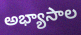
అభ్యాసాల